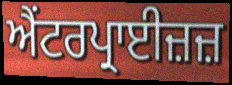
ਐਂਟਰਪ੍ਰਾਈਜ਼ਜ਼